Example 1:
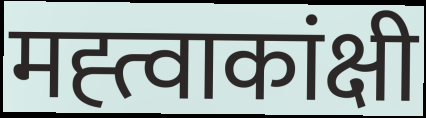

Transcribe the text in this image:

मह्त्वाकांक्षी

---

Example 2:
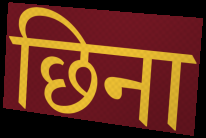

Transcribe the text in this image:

छिना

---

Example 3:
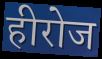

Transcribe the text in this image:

हीरोज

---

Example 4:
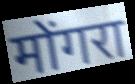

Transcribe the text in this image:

मोंगरा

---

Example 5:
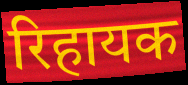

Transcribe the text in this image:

रिहायक